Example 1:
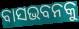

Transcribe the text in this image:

ବାସଭବନକୁ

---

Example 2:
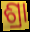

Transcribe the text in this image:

ଶ୍ରା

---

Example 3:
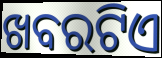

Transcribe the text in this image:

ଖବରଟିଏ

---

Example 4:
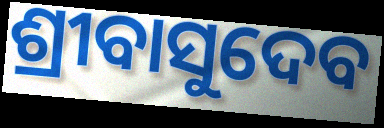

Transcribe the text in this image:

ଶ୍ରୀବାସୁଦେବ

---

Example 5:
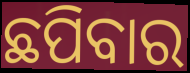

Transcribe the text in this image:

ଛପିବାର